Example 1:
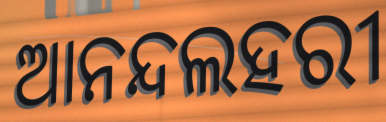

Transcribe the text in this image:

ଆନନ୍ଦଲହରୀ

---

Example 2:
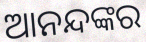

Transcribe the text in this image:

ଆନନ୍ଦଙ୍କର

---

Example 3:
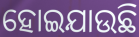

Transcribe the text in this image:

ହୋଇଯାଉଛି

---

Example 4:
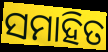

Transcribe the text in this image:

ସମାହିତ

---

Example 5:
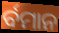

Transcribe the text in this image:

ର୍ବମାନ